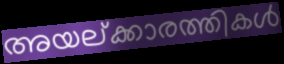
അയല്ക്കാരത്തികൾ